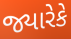
જ્યારેકે